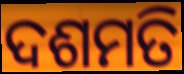
ଦଶମତି